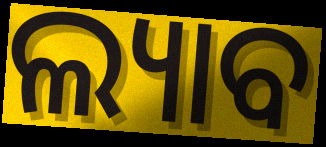
ଲ୍ୟାବ